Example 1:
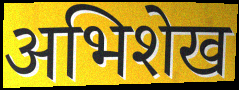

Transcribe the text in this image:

अभिशेख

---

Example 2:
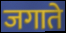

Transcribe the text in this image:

जगाते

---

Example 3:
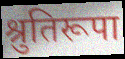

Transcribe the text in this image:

श्रुतिरूपा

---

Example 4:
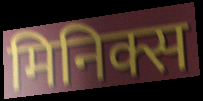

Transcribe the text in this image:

मिनिक्स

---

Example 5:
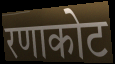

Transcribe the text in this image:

रणाकोट